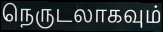
நெருடலாகவும்